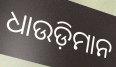
ଧାଉଡ଼ିମାନ